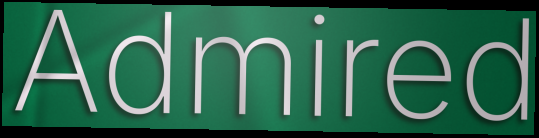
Admired